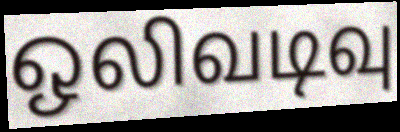
ஒலிவடிவு